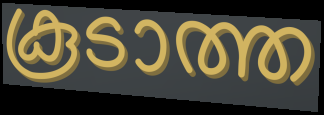
കൂടാത്ത